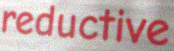
reductive